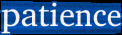
patience